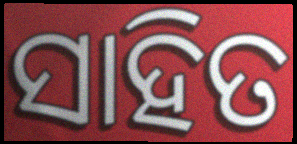
ସାହିତ